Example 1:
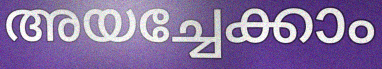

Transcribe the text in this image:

അയച്ചേക്കാം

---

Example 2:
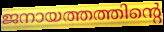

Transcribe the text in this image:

ജനായത്തത്തിന്റെ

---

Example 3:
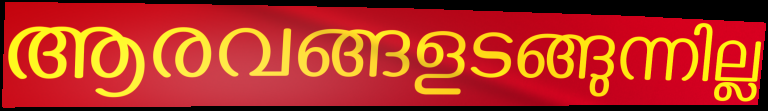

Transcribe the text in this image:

ആരവങ്ങളടങ്ങുന്നില്ല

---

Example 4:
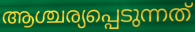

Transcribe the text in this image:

ആശ്ചര്യപ്പെടുന്നത്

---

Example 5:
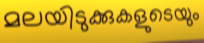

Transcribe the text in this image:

മലയിടുക്കുകളുടെയും